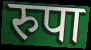
रुपा